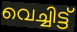
വെച്ചിട്ട്